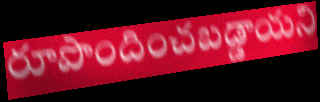
రూపొందించబడ్డాయని